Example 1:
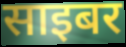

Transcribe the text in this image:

साइबर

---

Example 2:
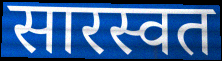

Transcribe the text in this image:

सारस्वत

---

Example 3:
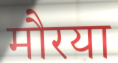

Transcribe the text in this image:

मौरया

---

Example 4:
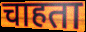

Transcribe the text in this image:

चाहता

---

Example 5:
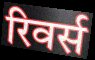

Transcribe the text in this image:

रिवर्स